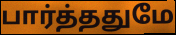
பார்த்ததுமே